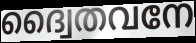
ദ്വൈതവനേ